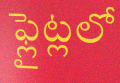
ఫ్లైట్లలో